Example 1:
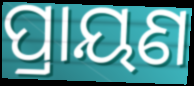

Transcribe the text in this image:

ପ୍ରାୟଣ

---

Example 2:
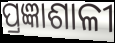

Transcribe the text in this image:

ପ୍ରଜ୍ଞାଶାଳୀ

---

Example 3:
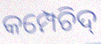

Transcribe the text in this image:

କମ୍ପେଚିଦ୍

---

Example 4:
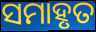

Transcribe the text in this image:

ସମାହୃତ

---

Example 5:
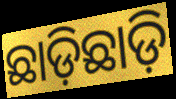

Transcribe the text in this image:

ଛାଡ଼ିଛାଡ଼ି